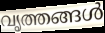
വൃത്തങ്ങൾ